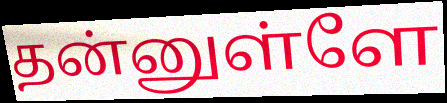
தன்னுள்ளே